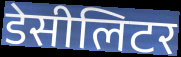
डेसीलिटर